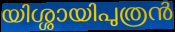
യിശ്ശായിപുത്രൻ